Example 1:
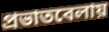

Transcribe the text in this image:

প্রভাতবেলায়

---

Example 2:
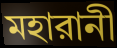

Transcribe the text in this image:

মহারানী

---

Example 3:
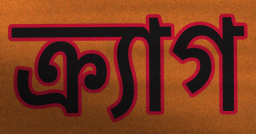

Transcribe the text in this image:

ক্র্যাগ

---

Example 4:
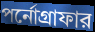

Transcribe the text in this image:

পর্নোগ্রাফার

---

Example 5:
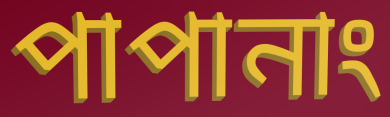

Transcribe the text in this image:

পাপানাং